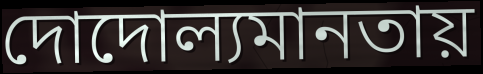
দোদোল্যমানতায়